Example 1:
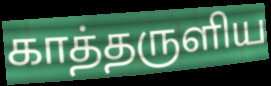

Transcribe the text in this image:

காத்தருளிய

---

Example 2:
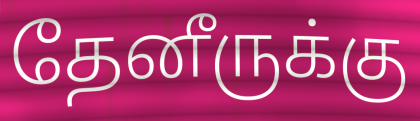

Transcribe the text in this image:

தேனீருக்கு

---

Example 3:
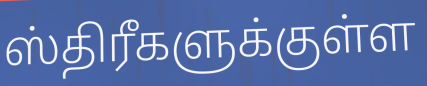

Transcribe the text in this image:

ஸ்திரீகளுக்குள்ள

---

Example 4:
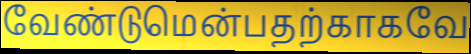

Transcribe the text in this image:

வேண்டுமென்பதற்காகவே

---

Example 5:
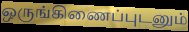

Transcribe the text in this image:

ஒருங்கிணைப்புடனும்